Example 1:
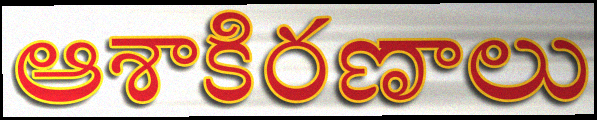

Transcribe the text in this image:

ఆశాకిరణాలు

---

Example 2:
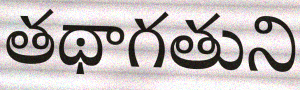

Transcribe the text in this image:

తథాగతుని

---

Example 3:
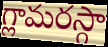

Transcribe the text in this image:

గ్లామరస్గా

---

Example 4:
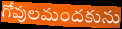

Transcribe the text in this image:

గోవులమందకును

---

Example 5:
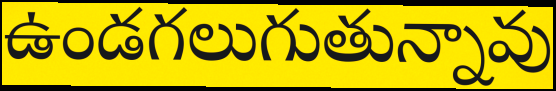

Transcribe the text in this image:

ఉండగలుగుతున్నావు